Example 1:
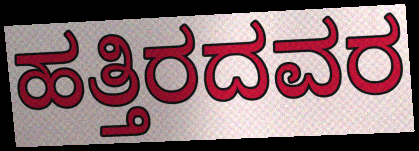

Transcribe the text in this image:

ಹತ್ತಿರದವರ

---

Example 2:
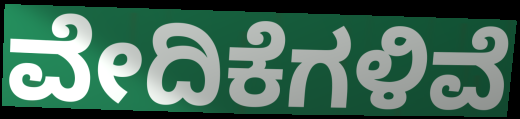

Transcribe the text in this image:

ವೇದಿಕೆಗಳಿವೆ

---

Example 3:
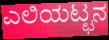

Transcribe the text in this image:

ಎಲಿಯಟ್ಟನ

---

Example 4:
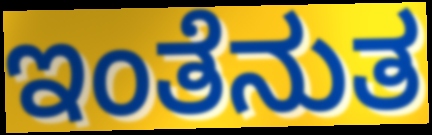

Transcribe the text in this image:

ಇಂತೆನುತ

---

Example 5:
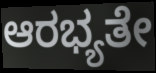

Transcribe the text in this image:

ಆರಭ್ಯತೇ